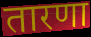
तारणा